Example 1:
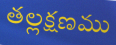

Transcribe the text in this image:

తల్లక్షణము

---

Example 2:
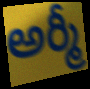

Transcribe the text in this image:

అర్మీ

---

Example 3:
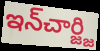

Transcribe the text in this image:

ఇన్‌చార్జ్జి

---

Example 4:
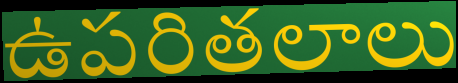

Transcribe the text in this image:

ఉపరితలాలు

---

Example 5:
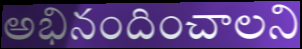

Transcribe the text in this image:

అభినందించాలని